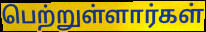
பெற்றுள்ளார்கள்